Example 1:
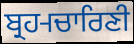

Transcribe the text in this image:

ਬ੍ਰਹ੍ਮਚਾਰਿਣੀ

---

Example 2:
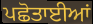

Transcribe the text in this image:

ਪਛੋਤਾਈਆਂ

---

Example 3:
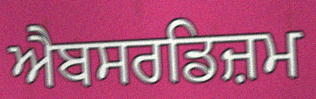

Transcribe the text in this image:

ਐਬਸਰਡਿਜ਼ਮ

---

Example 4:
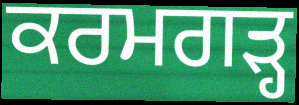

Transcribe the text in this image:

ਕਰਮਗੜ੍ਹ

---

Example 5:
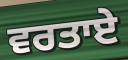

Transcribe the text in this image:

ਵਰਤਾਏ